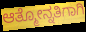
ಆತ್ಮೋನ್ನತಿಗಾಗಿ